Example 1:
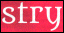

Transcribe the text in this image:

stry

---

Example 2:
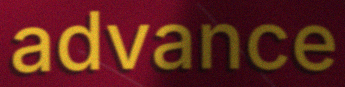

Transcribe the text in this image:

advance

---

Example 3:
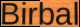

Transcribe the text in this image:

Birbal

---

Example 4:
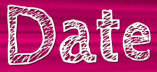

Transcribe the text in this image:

Date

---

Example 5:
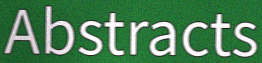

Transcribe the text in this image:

Abstracts